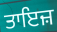
ਤਾਇਜ਼